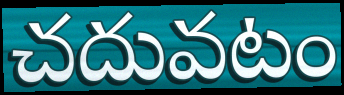
చదువటం